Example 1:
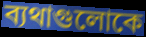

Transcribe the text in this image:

ব্যথাগুলোকে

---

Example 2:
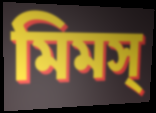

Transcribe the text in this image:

মিমস্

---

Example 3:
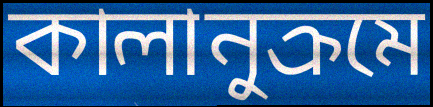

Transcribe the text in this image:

কালানুক্রমে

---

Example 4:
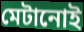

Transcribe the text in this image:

মেটানোই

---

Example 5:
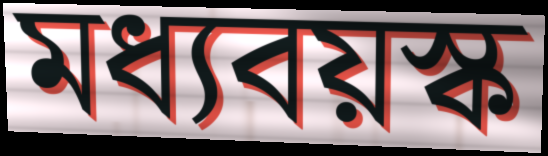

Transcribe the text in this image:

মধ্যবয়স্ক